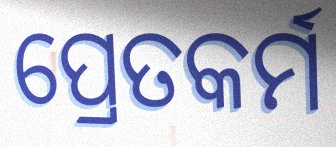
ପ୍ରେତକର୍ମ